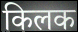
किलक